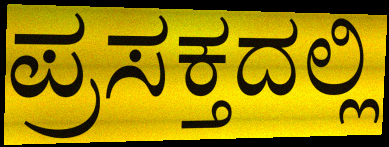
ಪ್ರಸಕ್ತದಲ್ಲಿ